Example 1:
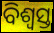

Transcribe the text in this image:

ବିଶ୍ୱସ୍ତ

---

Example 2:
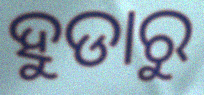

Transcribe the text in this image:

ହୁଡାରୁ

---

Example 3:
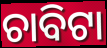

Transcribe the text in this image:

ଚାବିଟା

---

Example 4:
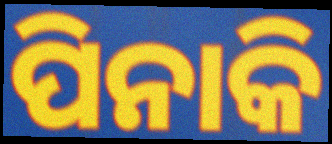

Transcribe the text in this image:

ପିନାକି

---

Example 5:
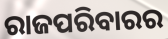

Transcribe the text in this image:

ରାଜପରିବାରର